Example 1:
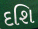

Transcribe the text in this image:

દશિ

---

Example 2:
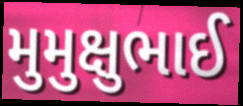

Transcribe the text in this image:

મુમુક્ષુભાઈ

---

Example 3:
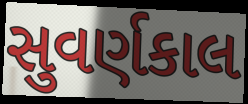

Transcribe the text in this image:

સુવર્ણકાલ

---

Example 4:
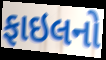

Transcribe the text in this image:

ફાઇલનો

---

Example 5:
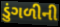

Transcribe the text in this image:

ડુંગળીની